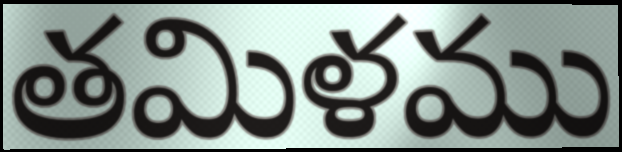
తమిళము